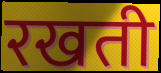
रखती